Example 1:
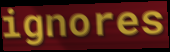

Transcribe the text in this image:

ignores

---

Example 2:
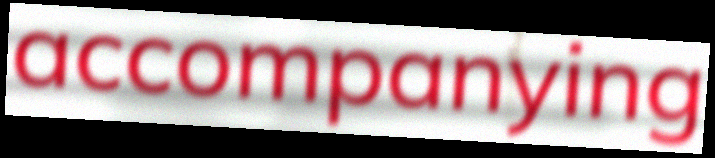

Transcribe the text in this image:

accompanying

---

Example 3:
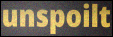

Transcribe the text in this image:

unspoilt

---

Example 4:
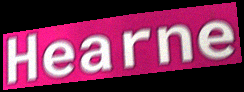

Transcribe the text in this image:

Hearne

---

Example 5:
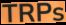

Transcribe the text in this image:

TRPs